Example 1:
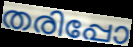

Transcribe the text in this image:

തരിപ്പോ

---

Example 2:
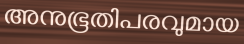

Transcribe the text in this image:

അനുഭൂതിപരവുമായ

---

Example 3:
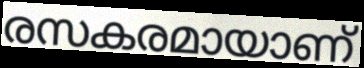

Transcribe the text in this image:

രസകരമായാണ്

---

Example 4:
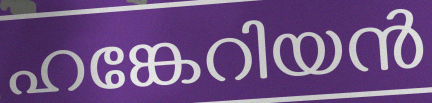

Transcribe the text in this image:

ഹങ്കേറിയൻ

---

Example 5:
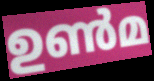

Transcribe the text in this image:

ഉൺമ